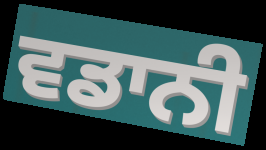
ਵਡਾਨੀ